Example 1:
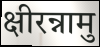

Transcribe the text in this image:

क्षीरन्नामु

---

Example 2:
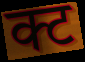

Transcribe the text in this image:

क्ट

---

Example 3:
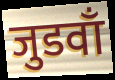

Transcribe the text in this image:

जुडवाँ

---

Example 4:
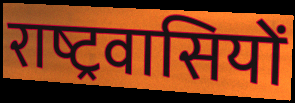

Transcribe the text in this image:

राष्ट्रवासियों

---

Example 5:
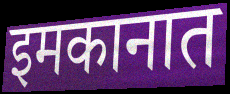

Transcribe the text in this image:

इमकानात